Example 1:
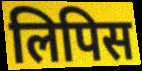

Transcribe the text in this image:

लिपिस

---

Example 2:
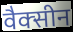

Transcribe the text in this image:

वैक्‍सीन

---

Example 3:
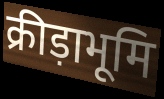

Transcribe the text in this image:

क्रीड़ाभूमि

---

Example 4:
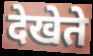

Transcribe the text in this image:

देखेते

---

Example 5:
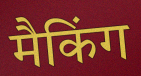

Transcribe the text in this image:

मैकिंग